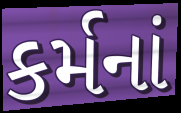
કર્મનાં